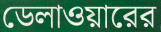
ডেলাওয়ারের